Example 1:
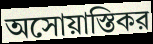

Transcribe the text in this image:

অসোয়াস্তিকর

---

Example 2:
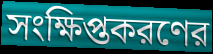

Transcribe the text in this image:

সংক্ষিপ্তকরণের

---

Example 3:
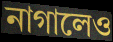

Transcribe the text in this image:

নাগালেও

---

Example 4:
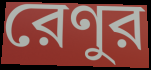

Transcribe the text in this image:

রেণুর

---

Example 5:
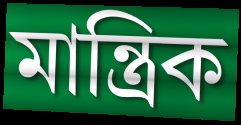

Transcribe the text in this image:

মান্ত্রিক